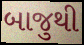
બાજુથી